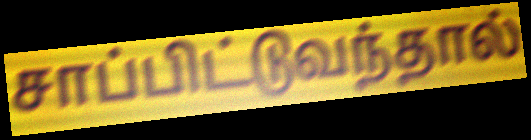
சாப்பிட்டுவந்தால்